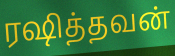
ரஷித்தவன்